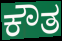
ಕೌತ